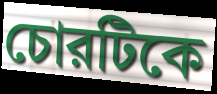
চোরটিকে